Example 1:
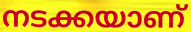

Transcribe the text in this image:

നടക്കയാണ്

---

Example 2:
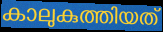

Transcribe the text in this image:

കാലുകുത്തിയത്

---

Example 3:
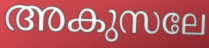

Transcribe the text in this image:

അകുസലേ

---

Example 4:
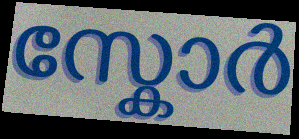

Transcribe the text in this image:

സ്കോർ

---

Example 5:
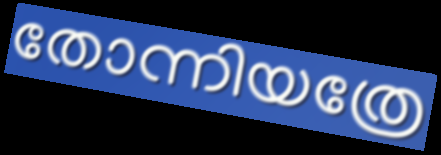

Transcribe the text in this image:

തോന്നിയത്രേ